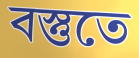
বস্তুতে